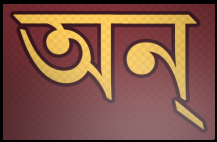
অন্